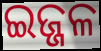
ଇଜ୍ଜଳ